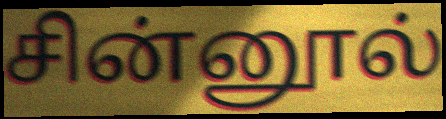
சின்னூல்